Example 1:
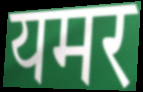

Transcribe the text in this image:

यमर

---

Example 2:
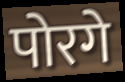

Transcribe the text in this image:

पोरगे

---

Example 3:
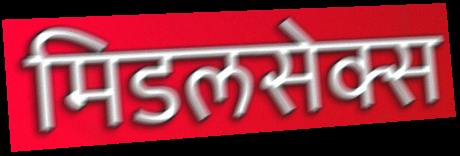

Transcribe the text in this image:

मिडलसेक्स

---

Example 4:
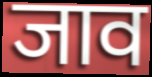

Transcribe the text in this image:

जाव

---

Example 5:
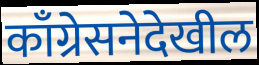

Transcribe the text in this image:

काँग्रेसनेदेखील